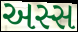
અસ્સ